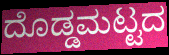
ದೊಡ್ಡಮಟ್ಟದ